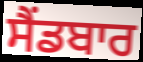
ਸੈਂਡਬਾਰ